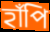
হাঁপি